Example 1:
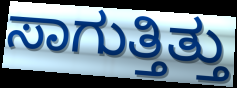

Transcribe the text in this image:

ಸಾಗುತ್ತಿತ್ತು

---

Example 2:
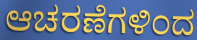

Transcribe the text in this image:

ಆಚರಣೆಗಳಿಂದ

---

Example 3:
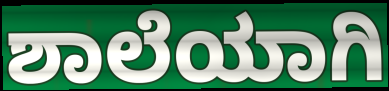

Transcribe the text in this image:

ಶಾಲೆಯಾಗಿ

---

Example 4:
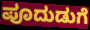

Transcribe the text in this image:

ಪೂದುಡುಗೆ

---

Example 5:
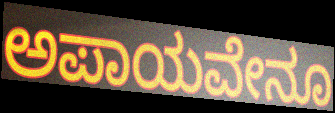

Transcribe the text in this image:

ಅಪಾಯವೇನೂ